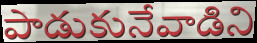
పాడుకునేవాడిని